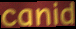
canid